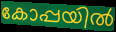
കോപ്പയിൽ